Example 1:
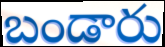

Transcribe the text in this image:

బండారు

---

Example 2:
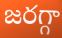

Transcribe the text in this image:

జరగ్గా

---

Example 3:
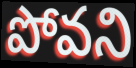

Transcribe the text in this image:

పోవని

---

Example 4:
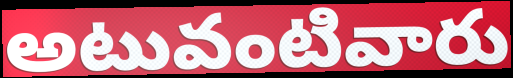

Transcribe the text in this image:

అటువంటివారు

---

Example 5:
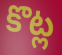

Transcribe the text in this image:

కొట్ల